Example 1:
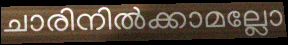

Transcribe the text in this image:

ചാരിനിൽക്കാമല്ലോ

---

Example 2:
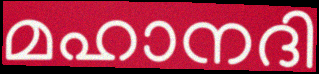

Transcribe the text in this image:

മഹാനദി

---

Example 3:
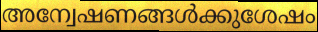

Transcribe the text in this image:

അന്വേഷണങ്ങൾക്കുശേഷം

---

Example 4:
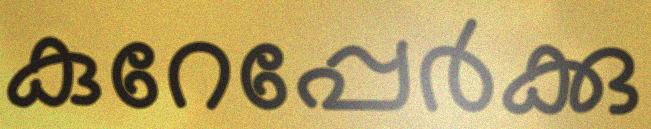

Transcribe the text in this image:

കുറേപ്പേർക്കു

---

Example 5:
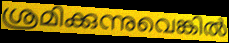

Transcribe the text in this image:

ശ്രമിക്കുന്നുവെങ്കിൽ